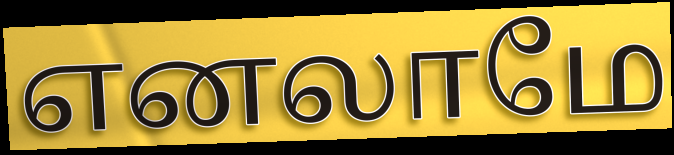
எனலாமே